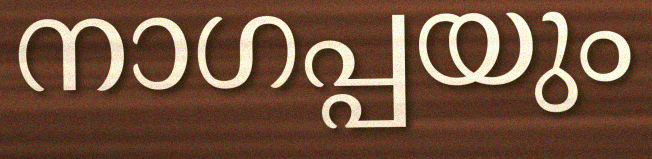
നാഗപ്പയും